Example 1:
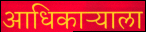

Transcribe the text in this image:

आधिकाऱ्याला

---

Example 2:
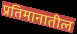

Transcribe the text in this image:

प्रतिमानातील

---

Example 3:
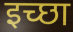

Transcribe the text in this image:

इच्छा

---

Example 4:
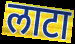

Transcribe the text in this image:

लाटा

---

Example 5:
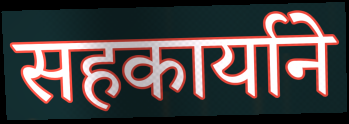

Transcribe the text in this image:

सहकार्याने